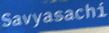
Savyasachi